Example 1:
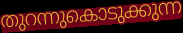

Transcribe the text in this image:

തുറന്നുകൊടുക്കുന്ന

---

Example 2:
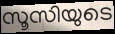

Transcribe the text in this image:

സൂസിയുടെ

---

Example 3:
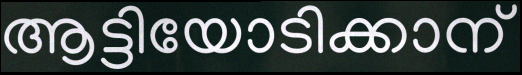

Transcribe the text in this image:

ആട്ടിയോടിക്കാന്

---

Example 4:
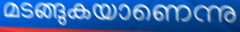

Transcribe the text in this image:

മടങ്ങുകയാണെന്നു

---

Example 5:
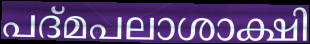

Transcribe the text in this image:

പദ്മപലാശാക്ഷി